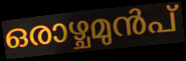
ഒരാഴ്ചമുൻപ്